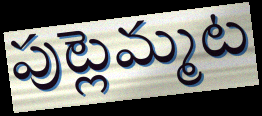
పుట్లెమ్మట